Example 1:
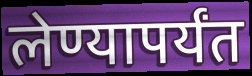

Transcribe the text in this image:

लेण्यापर्यंत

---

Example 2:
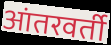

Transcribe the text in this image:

आंतरवर्ती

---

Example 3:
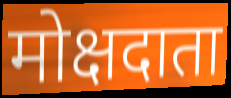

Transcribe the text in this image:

मोक्षदाता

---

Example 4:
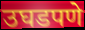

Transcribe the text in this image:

उघडपणे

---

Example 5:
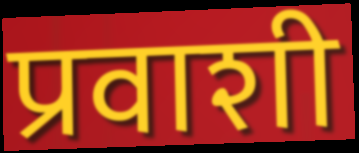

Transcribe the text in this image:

प्रवाशी